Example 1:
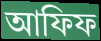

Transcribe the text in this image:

আফিফ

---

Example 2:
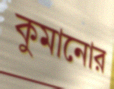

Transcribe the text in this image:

কুমানোর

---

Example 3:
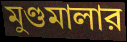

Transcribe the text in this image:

মুণ্ডমালার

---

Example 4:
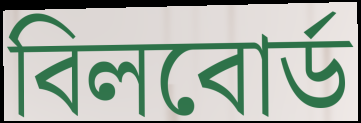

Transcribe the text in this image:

বিলবোর্ড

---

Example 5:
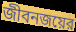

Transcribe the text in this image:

জীবনজয়ের